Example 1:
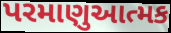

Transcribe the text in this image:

પરમાણુઆત્મક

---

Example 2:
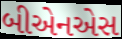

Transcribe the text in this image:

બીએનએસ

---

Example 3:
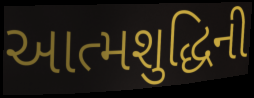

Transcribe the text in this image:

આત્મશુદ્ધિની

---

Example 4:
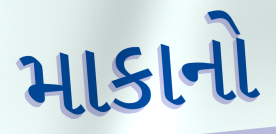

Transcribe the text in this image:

માકાનો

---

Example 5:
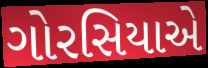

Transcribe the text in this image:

ગોરસિયાએ